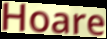
Hoare